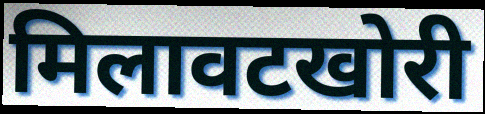
मिलावटखोरी